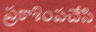
ప్రకాశింపచేసి